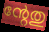
ന്റേതു